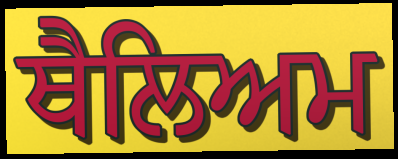
ਥੈਲਿਅਮ